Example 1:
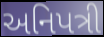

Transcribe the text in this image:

અનિપત્રી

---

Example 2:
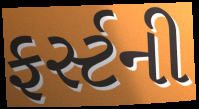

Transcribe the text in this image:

ફર્સ્ટની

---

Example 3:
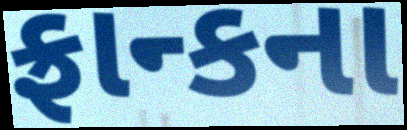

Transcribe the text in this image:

ફ્રાન્કના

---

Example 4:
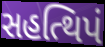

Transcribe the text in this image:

સહત્થિપં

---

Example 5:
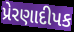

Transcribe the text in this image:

પ્રેરણાદીપક